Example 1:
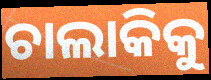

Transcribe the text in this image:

ଚାଲାକିକୁ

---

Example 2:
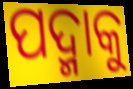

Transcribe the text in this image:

ପଦ୍ମାକୁ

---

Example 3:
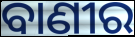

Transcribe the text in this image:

ବାଣୀର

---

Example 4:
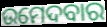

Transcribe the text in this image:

ଉମେଦବାର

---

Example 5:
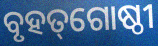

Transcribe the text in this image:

ବୃହତ୍‌ଗୋଷ୍ଠୀ